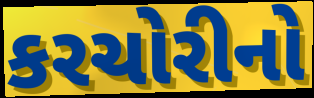
કરચોરીનો